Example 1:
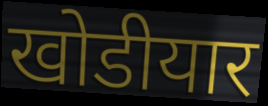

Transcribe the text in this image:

खोडीयार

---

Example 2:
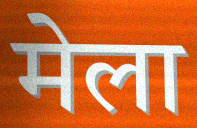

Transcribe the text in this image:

मेला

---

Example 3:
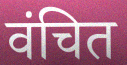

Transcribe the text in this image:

वंचित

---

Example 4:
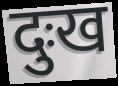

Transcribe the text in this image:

दुःख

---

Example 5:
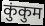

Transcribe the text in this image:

कुंकुम